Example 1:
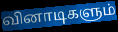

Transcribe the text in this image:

வினாடிகளும்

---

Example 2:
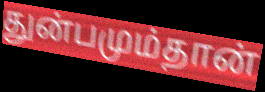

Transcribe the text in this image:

துன்பமும்தான்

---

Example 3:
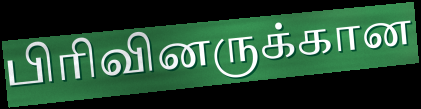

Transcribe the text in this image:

பிரிவினருக்கான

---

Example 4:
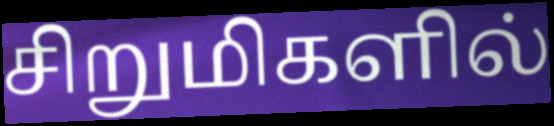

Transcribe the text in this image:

சிறுமிகளில்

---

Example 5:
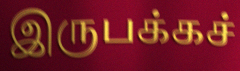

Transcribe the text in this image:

இருபக்கச்